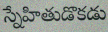
స్నేహితుడొకడు